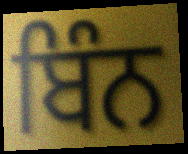
ਬਿੰਨ